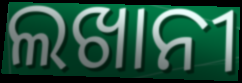
ଲଖାନୀ